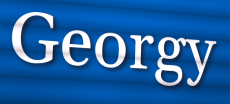
Georgy